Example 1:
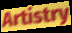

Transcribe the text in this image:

Artistry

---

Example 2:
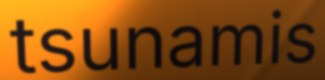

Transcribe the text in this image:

tsunamis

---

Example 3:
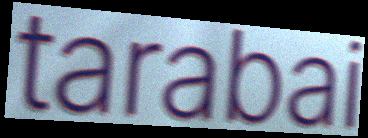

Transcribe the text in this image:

tarabai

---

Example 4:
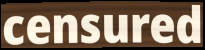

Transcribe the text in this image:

censured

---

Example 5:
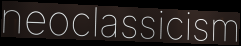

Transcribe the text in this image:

neoclassicism